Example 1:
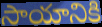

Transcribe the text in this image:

సాయానికి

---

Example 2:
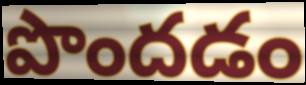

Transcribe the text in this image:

పొందడం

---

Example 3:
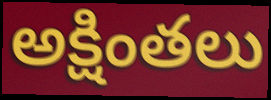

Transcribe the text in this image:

అక్షింతలు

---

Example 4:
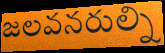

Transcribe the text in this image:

జలవనరుల్ని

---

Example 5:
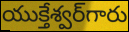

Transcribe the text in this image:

యుక్తేశ్వర్‌గారు